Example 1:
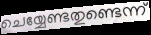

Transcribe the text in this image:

ചെയ്യേണ്ടതുണ്ടെന്ന്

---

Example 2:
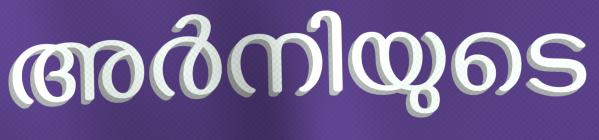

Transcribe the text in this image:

അർനിയുടെ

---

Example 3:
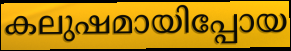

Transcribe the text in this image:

കലുഷമായിപ്പോയ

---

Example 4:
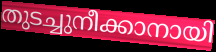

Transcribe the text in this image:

തുടച്ചുനീക്കാനായി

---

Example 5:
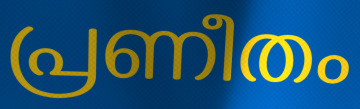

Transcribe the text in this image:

പ്രണീതം